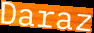
Daraz